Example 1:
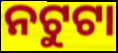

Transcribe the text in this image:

ନଟୁଟା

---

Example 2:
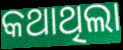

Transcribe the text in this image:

କଥାଥିଲା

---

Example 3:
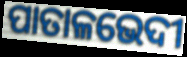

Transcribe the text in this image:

ପାତାଳଭେଦୀ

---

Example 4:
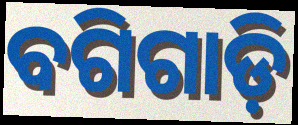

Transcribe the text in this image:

ବଗିଗାଡ଼ି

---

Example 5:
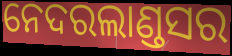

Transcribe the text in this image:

ନେଦରଲାଣ୍ଡସର